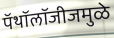
पॅथॉलॉजीजमुळे